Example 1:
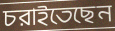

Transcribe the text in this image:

চরাইতেছেন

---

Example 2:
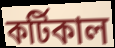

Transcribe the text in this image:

কর্টিকাল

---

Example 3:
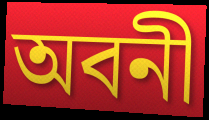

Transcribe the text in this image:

অবনী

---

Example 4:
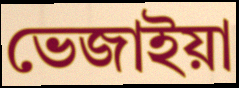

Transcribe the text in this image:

ভেজাইয়া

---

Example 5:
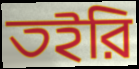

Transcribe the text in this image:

তইরি